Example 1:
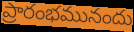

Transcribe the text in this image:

ప్రారంభమునందు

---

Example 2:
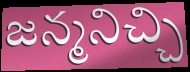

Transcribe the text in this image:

జన్మనిచ్చి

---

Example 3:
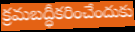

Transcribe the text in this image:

క్రమబద్ధీకరించేందుకు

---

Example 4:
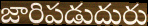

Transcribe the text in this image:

జారిపడుదురు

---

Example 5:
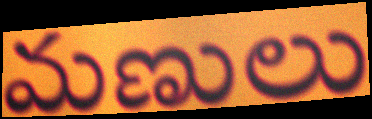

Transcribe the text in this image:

మణులు